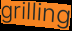
grilling